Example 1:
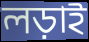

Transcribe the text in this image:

লড়াই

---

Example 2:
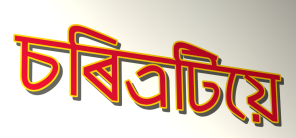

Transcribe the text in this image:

চৰিত্ৰটিয়ে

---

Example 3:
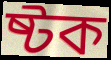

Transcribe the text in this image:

ষ্টক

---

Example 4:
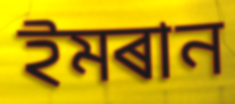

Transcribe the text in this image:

ইমৰান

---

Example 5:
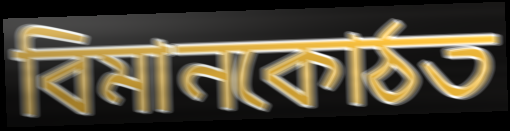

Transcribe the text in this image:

বিমানকোঠত